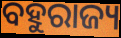
ବହୁରାଜ୍ୟ